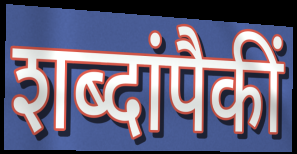
शब्दांपैकीं